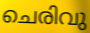
ചെരിവു